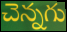
చెన్నగు